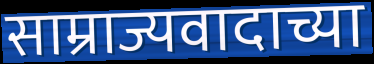
साम्राज्यवादाच्या